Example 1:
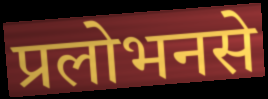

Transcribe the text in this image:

प्रलोभनसे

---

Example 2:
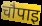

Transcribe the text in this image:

चौपाइ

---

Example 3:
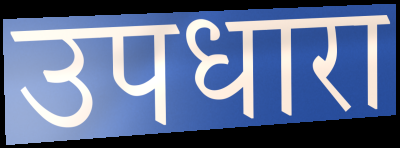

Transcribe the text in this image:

उपधारा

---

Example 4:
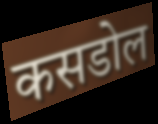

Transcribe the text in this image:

कसडोल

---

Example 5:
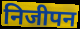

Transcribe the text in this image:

निजीपन